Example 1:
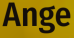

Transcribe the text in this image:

Ange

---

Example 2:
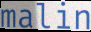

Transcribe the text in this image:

malin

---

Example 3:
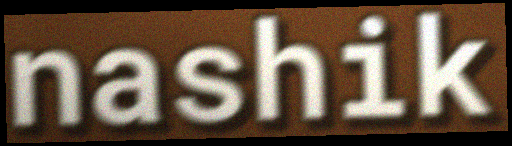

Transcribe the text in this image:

nashik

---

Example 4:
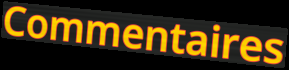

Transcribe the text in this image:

Commentaires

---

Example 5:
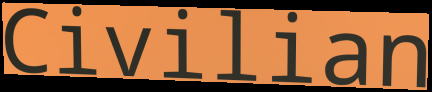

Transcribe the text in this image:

Civilian